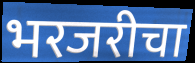
भरजरीचा